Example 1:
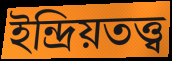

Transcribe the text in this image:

ইন্দ্রিয়তত্ত্ব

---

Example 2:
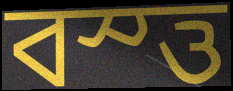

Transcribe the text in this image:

বস্ত্ত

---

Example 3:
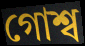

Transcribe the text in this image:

গোশ্ব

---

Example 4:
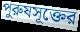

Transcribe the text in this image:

পুরুষসূক্তের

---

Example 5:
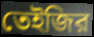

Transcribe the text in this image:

তেইজির